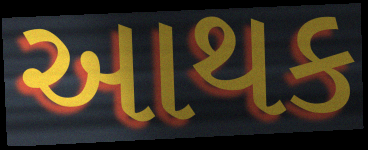
આથક